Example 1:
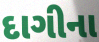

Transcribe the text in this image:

દાગીના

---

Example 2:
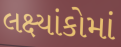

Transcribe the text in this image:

લક્ષ્યાંકોમાં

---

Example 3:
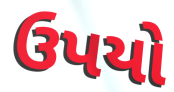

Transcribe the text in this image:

ઉપયો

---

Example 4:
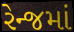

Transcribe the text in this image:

રેન્જમાં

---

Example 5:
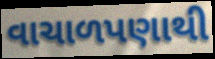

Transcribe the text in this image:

વાચાળપણાથી